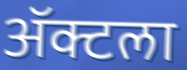
ॲक्टला